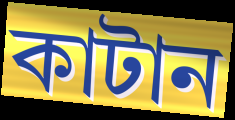
কাটান